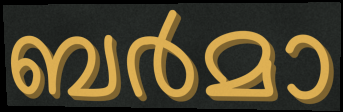
ബർമാ